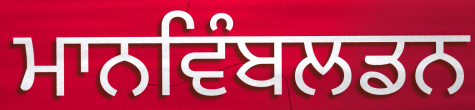
ਮਾਨਵਿੰਬਲਡਨ